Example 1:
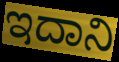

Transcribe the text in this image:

ಇದಾನಿ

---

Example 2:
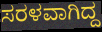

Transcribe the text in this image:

ಸರಳವಾಗಿದ್ದ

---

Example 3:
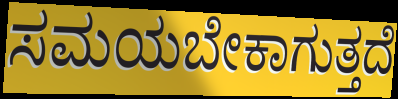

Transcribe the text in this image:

ಸಮಯಬೇಕಾಗುತ್ತದೆ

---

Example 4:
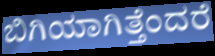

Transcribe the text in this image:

ಬಿಗಿಯಾಗಿತ್ತೆಂದರೆ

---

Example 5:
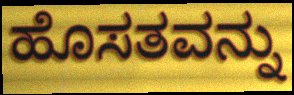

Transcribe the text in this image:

ಹೊಸತವನ್ನು